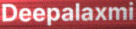
Deepalaxmi